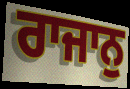
ਰਾਜਾਨੁ